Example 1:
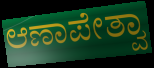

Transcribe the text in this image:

ಆಣಾಪೇತ್ವಾ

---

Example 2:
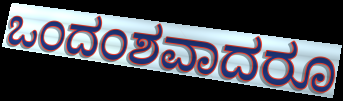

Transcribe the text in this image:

ಒಂದಂಶವಾದರೂ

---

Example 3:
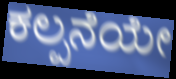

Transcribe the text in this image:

ಕಲ್ಪನೆಯೇ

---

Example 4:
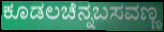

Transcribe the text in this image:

ಕೂಡಲಚೆನ್ನಬಸವಣ್ಣ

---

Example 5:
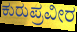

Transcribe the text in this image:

ಕುರುಪ್ರವೀರ